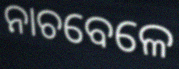
ନାଚବେଳେ